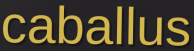
caballus